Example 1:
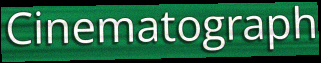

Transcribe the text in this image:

Cinematograph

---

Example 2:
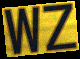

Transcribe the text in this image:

WZ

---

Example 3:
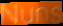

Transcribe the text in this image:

Nuns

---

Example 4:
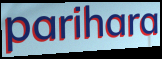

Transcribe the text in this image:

parihara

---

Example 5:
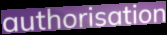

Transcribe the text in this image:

authorisation